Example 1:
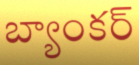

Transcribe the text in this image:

బ్యాంకర్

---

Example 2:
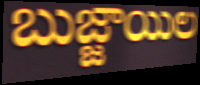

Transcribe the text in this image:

బుజ్జాయిల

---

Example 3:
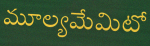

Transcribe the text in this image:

మూల్యమేమిటో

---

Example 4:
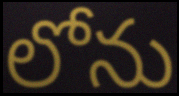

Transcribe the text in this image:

లోను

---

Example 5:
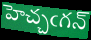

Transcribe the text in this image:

హెచ్చఁగన్